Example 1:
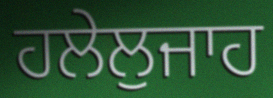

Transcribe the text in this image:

ਹਲੇਲੁਜਾਹ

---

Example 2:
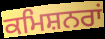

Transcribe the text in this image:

ਕਮਿਸ਼ਨਰਾਂ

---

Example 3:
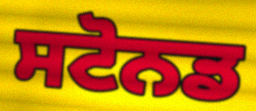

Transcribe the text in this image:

ਸਟੋਨਡ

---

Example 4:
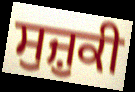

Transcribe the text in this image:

ਸੁਜ਼ੁਕੀ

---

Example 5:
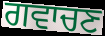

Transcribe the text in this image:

ਗਵਾਚਣ